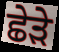
ਛੇੜੇ